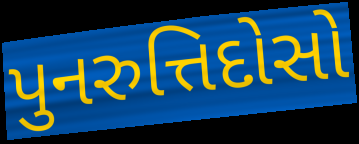
પુનરુત્તિદોસો